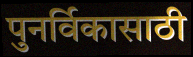
पुनर्विकासाठी